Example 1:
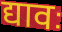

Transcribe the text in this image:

द्यावः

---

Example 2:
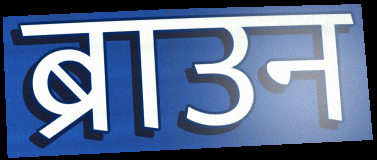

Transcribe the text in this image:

ब्राउन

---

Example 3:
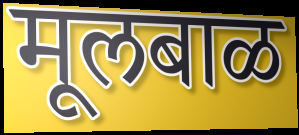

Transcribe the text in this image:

मूलबाळ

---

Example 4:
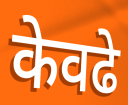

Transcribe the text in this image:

केवढे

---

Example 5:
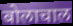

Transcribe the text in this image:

बोलाचाल